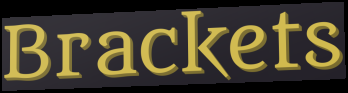
Brackets